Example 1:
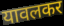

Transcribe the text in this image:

यावलकर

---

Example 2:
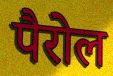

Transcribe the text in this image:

पैरोल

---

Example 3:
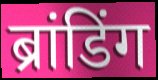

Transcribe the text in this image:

ब्रांडिंग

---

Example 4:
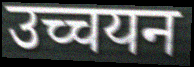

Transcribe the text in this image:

उच्चयन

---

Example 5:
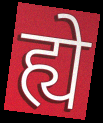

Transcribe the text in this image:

ह्ये